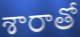
శారాతో